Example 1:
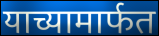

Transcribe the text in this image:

याच्यामार्फत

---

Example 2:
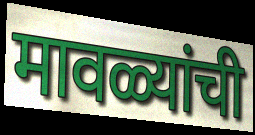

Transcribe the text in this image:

मावळ्यांची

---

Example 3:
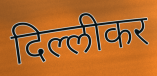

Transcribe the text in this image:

दिल्लीकर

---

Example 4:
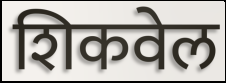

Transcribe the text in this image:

शिकवेल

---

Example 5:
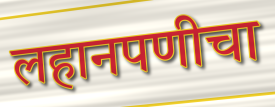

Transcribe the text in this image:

लहानपणीचा